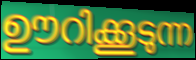
ഊറിക്കൂടുന്ന